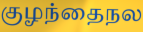
குழந்தைநல